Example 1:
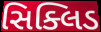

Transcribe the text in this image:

સિક્લિડ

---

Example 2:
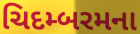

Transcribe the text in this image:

ચિદમ્બરમના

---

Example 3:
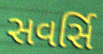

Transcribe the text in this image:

સવર્સિ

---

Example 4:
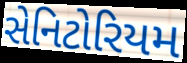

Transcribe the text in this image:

સેનિટોરિયમ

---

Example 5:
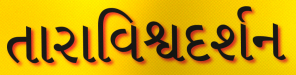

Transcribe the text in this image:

તારાવિશ્વદર્શન